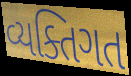
વ્યક્તિગત